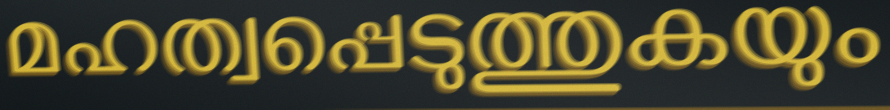
മഹത്വപ്പെടുത്തുകയും